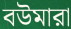
বউমারা